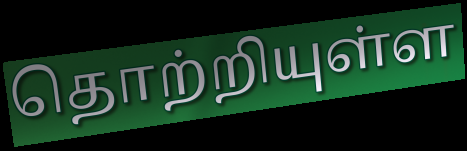
தொற்றியுள்ள